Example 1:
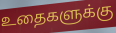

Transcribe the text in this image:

உதைகளுக்கு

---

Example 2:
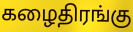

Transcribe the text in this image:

கழைதிரங்கு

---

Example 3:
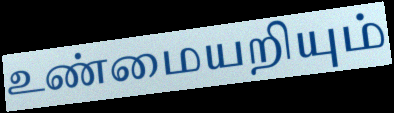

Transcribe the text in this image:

உண்மையறியும்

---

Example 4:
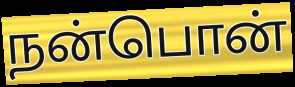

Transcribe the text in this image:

நன்பொன்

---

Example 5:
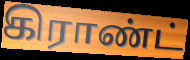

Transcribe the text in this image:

கிராண்ட்